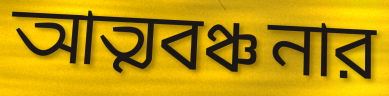
আত্মবঞ্চনার